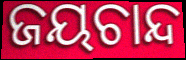
ଜୟଚାନ୍ଦ